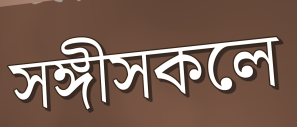
সঙ্গীসকলে